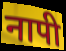
नापी